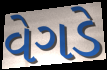
વેગડે